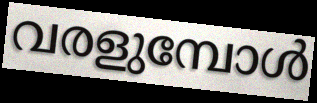
വരളുമ്പോൾ